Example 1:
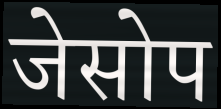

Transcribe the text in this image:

जेसोप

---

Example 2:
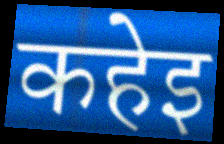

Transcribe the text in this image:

कहेइ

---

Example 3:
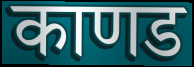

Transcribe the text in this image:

काणड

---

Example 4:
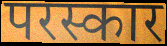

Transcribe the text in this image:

परस्कार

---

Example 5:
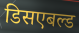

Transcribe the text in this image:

डिसएबल्ड